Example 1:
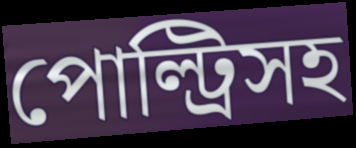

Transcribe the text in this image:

পোল্ট্রিসহ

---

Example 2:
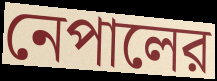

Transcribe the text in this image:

নেপালের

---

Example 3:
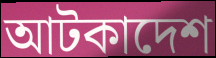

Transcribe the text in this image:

আটকাদেশ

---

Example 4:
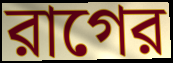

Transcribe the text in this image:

রাগের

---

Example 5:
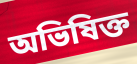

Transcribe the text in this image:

অভিষিক্ত